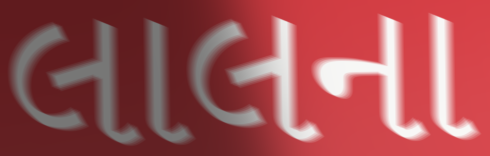
લાલના